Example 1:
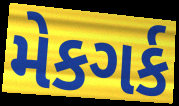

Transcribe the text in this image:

મેકગર્ક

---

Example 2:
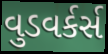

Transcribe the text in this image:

વુડવર્કર્સ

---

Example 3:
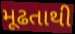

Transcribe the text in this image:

મૂઢતાથી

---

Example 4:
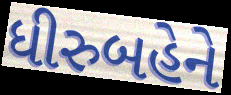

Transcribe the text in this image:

ધીરુબહેને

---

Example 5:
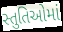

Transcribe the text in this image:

સ્તુતિઓમાં